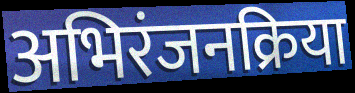
अभिरंजनक्रिया